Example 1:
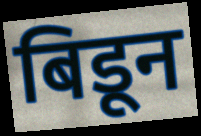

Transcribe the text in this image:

बिडून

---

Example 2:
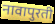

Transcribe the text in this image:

नावापुरती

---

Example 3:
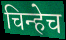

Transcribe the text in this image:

चिन्हेच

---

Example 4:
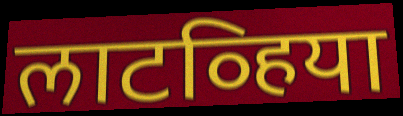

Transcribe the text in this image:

लाटव्हिया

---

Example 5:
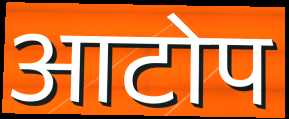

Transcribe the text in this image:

आटोप